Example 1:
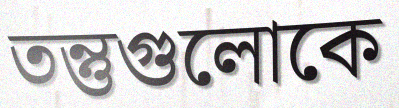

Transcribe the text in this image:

তন্তুগুলোকে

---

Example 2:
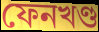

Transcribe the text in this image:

ফেনখণ্ড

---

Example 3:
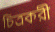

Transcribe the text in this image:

চিত্রকরী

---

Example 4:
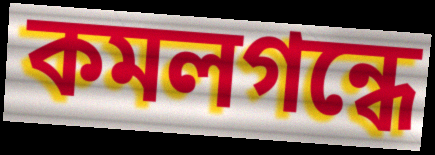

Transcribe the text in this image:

কমলগন্ধে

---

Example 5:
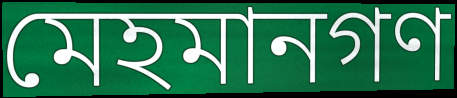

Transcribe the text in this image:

মেহমানগণ